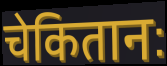
चेकितानः